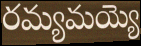
రమ్యమయ్యె